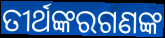
ତୀର୍ଥଙ୍କରଗଣଙ୍କ